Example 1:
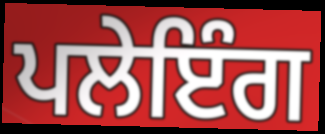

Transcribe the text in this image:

ਪਲੇਇੰਗ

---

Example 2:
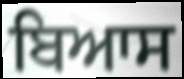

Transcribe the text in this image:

ਬਿਆਸ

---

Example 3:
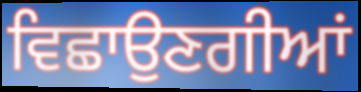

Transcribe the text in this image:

ਵਿਛਾਉਣਗੀਆਂ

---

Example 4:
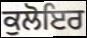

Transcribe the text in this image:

ਕੁਲੋਇਰ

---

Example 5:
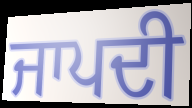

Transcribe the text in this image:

ਜਾਪਦੀ